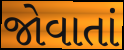
જોવાતાં